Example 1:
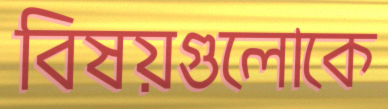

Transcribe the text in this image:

বিষয়গুলোকে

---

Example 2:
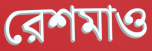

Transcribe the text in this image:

রেশমাও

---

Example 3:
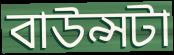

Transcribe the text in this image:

বাউন্সটা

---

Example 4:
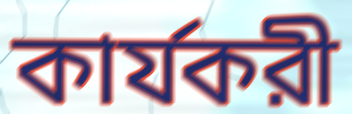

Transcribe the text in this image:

কার্যকরী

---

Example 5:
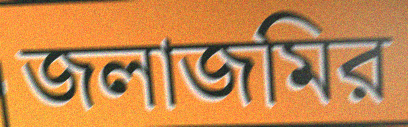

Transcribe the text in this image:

জলাজমির